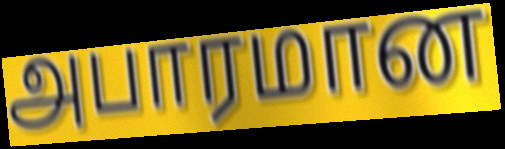
அபாரமான